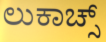
ಲುಕಾಚ್ಸ್